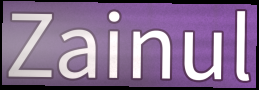
Zainul